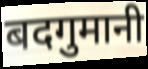
बदगुमानी